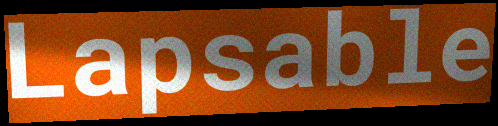
Lapsable